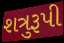
શત્રુરૂપી